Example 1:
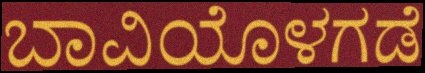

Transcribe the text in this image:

ಬಾವಿಯೊಳಗಡೆ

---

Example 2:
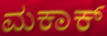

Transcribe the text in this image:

ಮಕಾಕ್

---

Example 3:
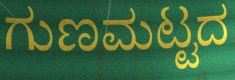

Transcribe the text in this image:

ಗುಣಮಟ್ಟದ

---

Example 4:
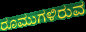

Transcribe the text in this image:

ರೂಮುಗಳಿರುವ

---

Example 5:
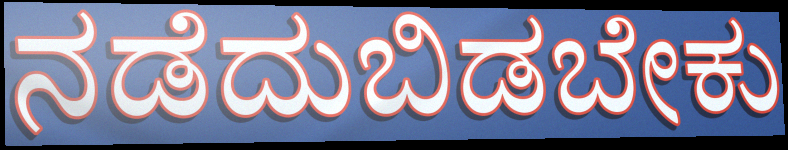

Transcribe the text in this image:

ನಡೆದುಬಿಡಬೇಕು